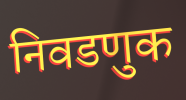
निवडणुक